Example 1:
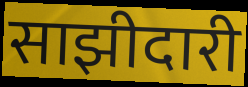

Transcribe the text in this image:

साझीदारी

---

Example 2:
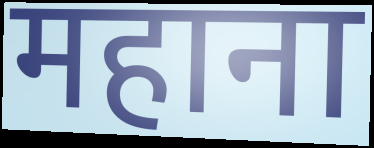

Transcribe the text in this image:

महाना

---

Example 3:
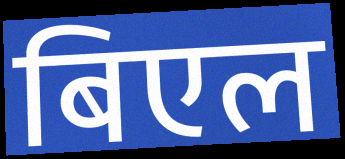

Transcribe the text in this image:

बिएल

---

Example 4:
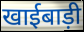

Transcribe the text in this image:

खाईबाड़ी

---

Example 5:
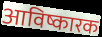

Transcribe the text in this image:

आविष्कारक